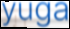
yuga